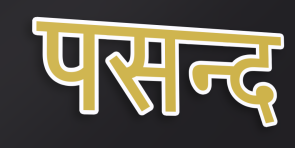
पसन्द